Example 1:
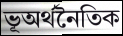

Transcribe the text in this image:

ভূঅর্থনৈতিক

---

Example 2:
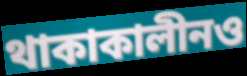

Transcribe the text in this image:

থাকাকালীনও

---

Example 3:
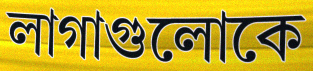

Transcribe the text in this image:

লাগাগুলোকে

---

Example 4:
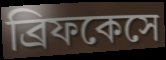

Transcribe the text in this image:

ব্রিফকেসে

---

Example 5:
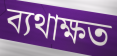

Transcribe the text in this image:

ব্যথাক্ষত